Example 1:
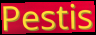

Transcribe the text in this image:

Pestis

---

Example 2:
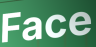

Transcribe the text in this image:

Face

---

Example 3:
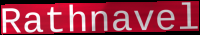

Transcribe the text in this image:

Rathnavel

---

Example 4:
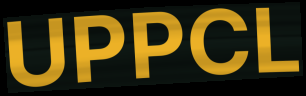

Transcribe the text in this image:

UPPCL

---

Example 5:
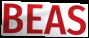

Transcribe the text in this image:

BEAS